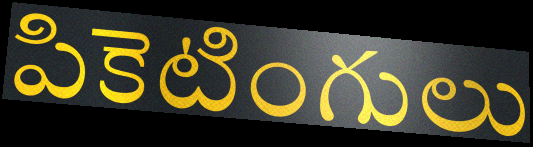
పికెటింగులు